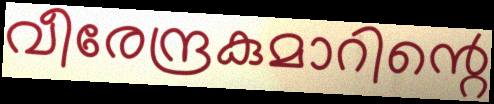
വീരേന്ദ്രകുമാറിന്റെ